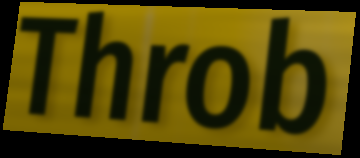
Throb